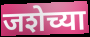
जशेच्या